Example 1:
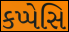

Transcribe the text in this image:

કપ્પેસિ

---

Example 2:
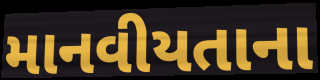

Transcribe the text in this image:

માનવીયતાના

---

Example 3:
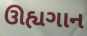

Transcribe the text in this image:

ઊહ્યગાન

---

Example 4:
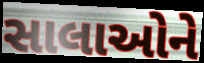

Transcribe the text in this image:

સાલાઓને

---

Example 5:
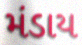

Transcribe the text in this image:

મંડાય